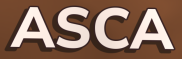
ASCA